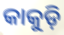
କାକୁଡ଼ି